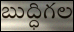
బుద్ధిగల